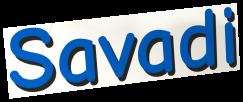
Savadi